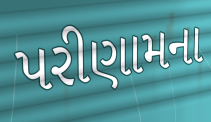
પરીણામના